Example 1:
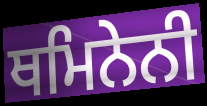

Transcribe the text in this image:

ਥਮਿਨੇਨੀ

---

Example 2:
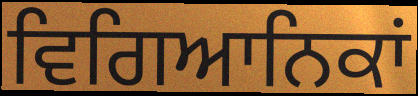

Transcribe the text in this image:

ਵਿਗਿਆਨਿਕਾਂ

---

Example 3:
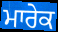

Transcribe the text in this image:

ਮਾਰੇਕ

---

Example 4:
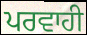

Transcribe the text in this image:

ਪਰਵਾਹੀ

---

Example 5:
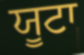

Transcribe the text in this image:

ਯੂਟਾ